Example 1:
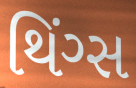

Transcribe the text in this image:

થિંગ્સ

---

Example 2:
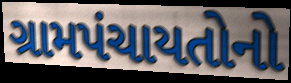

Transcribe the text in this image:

ગ્રામપંચાયતોનો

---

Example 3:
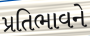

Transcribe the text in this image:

પ્રતિભાવને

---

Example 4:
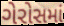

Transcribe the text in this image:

ગેરોસમાં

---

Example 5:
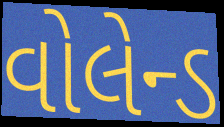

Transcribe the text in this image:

વોલેન્ડ